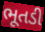
ભૂતડી